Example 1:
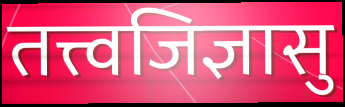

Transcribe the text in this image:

तत्त्वजिज्ञासु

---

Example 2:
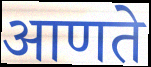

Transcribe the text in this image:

आणते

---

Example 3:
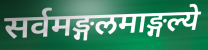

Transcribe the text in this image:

सर्वमङ्गलमाङ्गल्ये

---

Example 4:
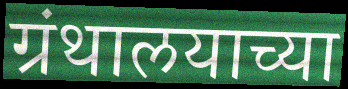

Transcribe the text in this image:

ग्रंथालयाच्या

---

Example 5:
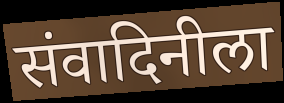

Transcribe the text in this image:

संवादिनीला